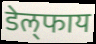
डेल्फाय